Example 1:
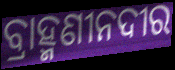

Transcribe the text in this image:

ବ୍ରାହ୍ମଣୀନଦୀର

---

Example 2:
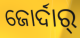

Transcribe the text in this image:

ଜୋର୍ଦାର୍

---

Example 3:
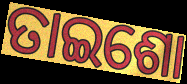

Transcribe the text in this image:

ତାଇଶୋ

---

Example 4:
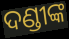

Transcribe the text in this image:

ଦଣ୍ଡୀଙ୍କ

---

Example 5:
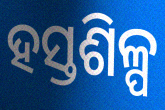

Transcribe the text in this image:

ହସ୍ତଶିଳ୍ପ